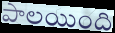
పాలయింది